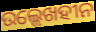
ଉଲ୍ଲେଖହୀନ